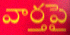
వార్తపై